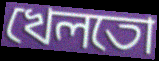
খেলতো